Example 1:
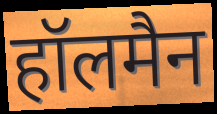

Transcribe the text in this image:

हॉलमैन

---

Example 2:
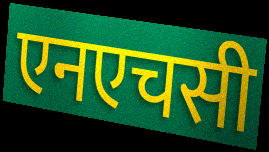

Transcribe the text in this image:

एनएचसी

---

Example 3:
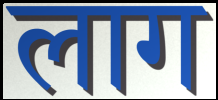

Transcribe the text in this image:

लाग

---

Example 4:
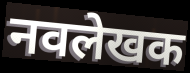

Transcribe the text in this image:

नवलेखक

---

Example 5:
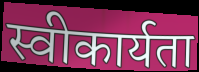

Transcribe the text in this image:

स्वीकार्यता